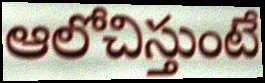
ఆలోచిస్తుంటే